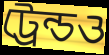
ট্রেন্ডও